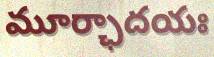
మూర్ఛాదయః